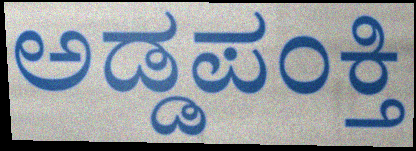
ಅಡ್ಡಪಂಕ್ತಿ